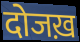
दोजख़